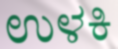
ಉಳಕಿ